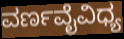
ವರ್ಣವೈವಿಧ್ಯ